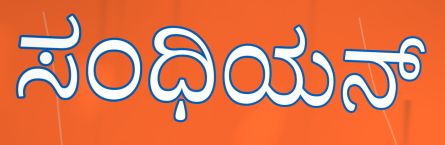
ಸಂಧಿಯನ್